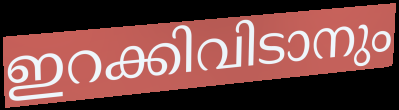
ഇറക്കിവിടാനും